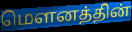
மௌனத்தின்